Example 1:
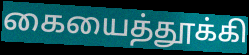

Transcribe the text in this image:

கையைத்தூக்கி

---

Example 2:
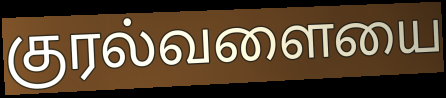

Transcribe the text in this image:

குரல்வளையை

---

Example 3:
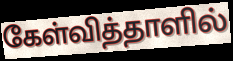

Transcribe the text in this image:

கேள்வித்தாளில்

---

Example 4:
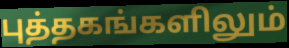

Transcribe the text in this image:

புத்தகங்களிலும்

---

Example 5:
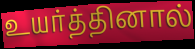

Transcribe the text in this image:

உயர்த்தினால்